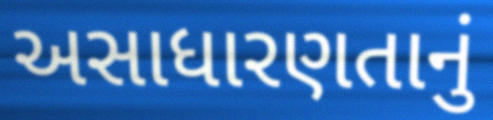
અસાધારણતાનું